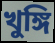
খুঙ্গি